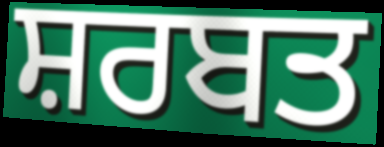
ਸ਼ਰਬਤ